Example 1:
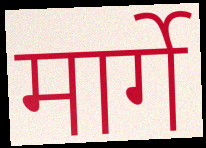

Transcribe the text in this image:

मार्गे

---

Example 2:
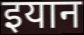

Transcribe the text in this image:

इयान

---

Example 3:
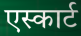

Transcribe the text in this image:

एस्कार्ट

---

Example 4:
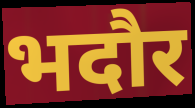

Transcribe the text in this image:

भदौर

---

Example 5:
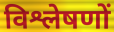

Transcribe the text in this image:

विश्लेषणों